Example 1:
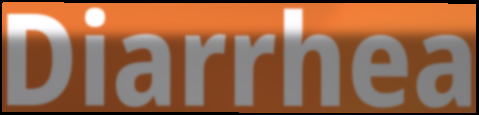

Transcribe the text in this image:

Diarrhea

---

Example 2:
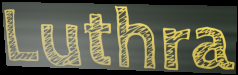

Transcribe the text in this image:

Luthra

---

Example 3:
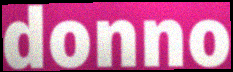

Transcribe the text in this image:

donno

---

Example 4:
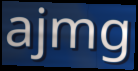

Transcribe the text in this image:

ajmg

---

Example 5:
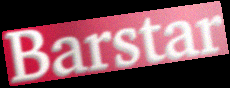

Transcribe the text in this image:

Barstar